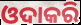
ଓଦାକରି